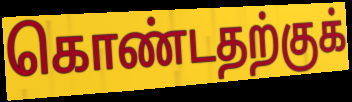
கொண்டதற்குக்